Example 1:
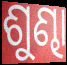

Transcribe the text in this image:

ଶୁଣ୍ଢା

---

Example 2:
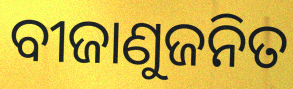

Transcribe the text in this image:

ବୀଜାଣୁଜନିତ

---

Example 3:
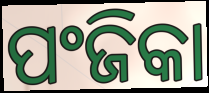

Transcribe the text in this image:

ପଂଜିକା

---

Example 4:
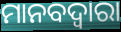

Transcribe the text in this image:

ମାନବଦ୍ୱାରା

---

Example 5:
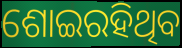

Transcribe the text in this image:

ଶୋଇରହିଥିବ